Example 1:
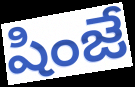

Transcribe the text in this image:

షింజే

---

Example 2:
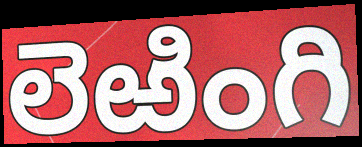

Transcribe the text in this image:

లెఱింగి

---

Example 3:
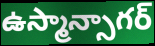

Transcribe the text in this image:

ఉస్మాన్సాగర్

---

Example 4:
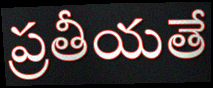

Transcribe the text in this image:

ప్రతీయతే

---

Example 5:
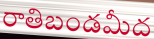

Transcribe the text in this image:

రాతిబండమీద